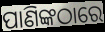
ପାଣିଙ୍କଠାରେ